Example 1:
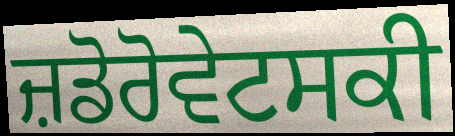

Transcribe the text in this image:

ਜ਼ਡੋਰੋਵੇਟਸਕੀ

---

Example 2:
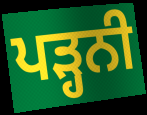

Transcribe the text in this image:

ਪੜ੍ਹਨੀ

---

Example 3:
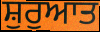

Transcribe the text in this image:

ਸ਼ੁਰੁਆਤ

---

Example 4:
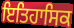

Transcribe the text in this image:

ਇਤਿਹਾਸਿਕ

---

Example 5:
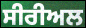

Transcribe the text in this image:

ਸੀਰੀਅਲ